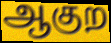
ஆகுற